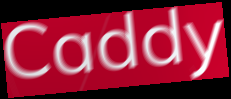
Caddy